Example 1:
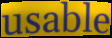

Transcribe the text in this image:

usable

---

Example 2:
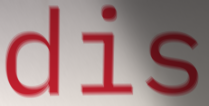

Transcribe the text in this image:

dis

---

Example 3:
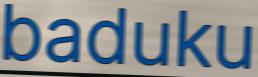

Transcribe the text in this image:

baduku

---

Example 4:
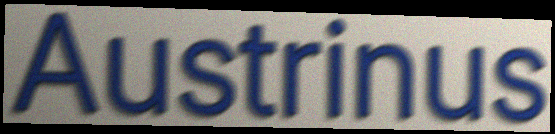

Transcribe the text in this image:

Austrinus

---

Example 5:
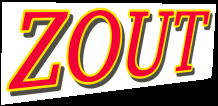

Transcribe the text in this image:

ZOUT